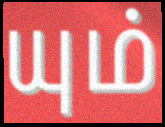
யும்